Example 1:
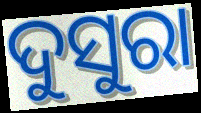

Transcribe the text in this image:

ଦୁସୁରା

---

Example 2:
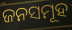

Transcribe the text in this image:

ଜନସମୂହ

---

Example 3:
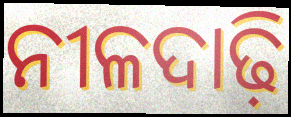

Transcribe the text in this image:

ନୀଳଦାଢ଼ି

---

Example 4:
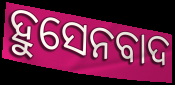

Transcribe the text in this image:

ହୁସେନବାଦ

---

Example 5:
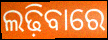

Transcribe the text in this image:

ଲଢ଼ିବାରେ